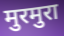
मुरमुरा